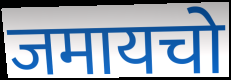
जमायचो